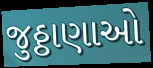
જુઠ્ઠાણાઓ